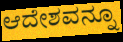
ಆದೇಶವನ್ನೂ